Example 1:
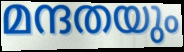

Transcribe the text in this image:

മന്ദതയും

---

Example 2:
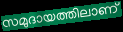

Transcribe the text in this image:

സമുദായത്തിലാണ്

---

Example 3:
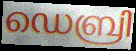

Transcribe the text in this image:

ഡെബ്രി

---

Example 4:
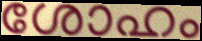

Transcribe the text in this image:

ശോഹം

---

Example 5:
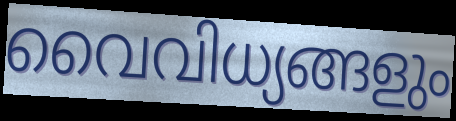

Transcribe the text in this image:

വൈവിധ്യങ്ങളും